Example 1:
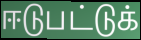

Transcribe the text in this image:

ஈடுபட்டுக்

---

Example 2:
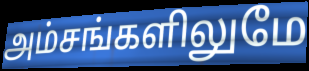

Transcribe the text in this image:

அம்சங்களிலுமே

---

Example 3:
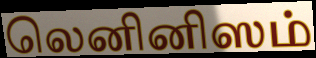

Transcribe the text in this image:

லெனினிஸம்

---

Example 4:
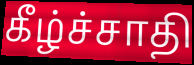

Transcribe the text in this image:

கீழ்ச்சாதி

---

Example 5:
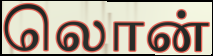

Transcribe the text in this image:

லொன்